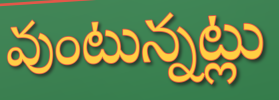
వుంటున్నట్లు